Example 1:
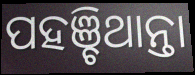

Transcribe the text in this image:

ପହଞ୍ଚିଥାନ୍ତା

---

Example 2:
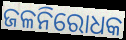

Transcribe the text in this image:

ଜଳନିରୋଧକ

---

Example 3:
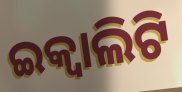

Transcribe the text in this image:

ଇକ୍ୱାଲିଟି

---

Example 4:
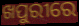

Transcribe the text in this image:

ଖପୁରୀରେ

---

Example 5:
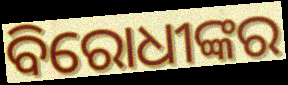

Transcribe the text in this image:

ବିରୋଧୀଙ୍କର